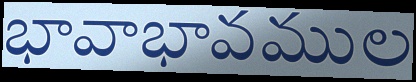
భావాభావముల